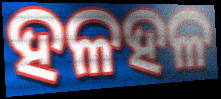
ହଳହଳ